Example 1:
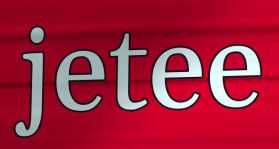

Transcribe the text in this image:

jetee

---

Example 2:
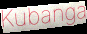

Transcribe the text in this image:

Kubanga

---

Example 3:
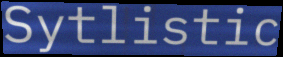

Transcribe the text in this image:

Sytlistic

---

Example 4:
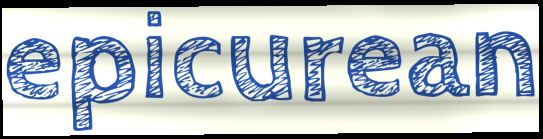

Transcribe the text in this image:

epicurean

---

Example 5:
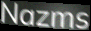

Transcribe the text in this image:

Nazms